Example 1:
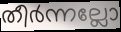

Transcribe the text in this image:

തീർന്നല്ലോ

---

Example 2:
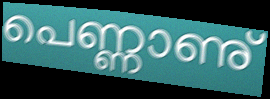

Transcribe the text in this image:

പെണ്ണാണു്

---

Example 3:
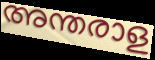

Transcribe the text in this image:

അന്തരാള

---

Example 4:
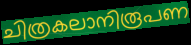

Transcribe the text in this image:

ചിത്രകലാനിരൂപണ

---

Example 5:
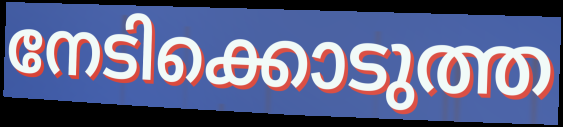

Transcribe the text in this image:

നേടിക്കൊടുത്ത